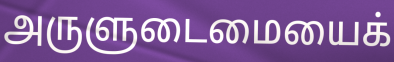
அருளுடைமையைக்